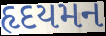
હૃદયમન